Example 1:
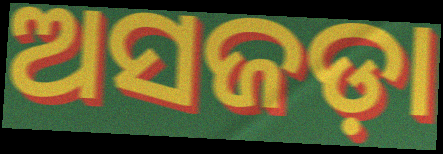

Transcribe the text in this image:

ଅସଜଡ଼ା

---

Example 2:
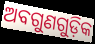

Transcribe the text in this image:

ଅବଗୁଣଗୁଡ଼ିକ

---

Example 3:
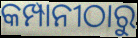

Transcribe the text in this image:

କମ୍ପାନୀଠାରୁ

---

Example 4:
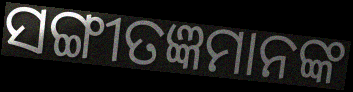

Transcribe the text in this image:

ସଙ୍ଗୀତଜ୍ଞମାନଙ୍କ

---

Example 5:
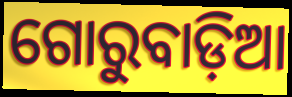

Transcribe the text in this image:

ଗୋରୁବାଡ଼ିଆ